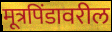
मूत्रपिंडावरील